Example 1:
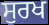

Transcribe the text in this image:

ਸੁਰਖ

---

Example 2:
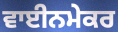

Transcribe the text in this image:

ਵਾਈਨਮੇਕਰ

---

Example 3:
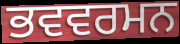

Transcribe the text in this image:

ਭਵਵਰਮਨ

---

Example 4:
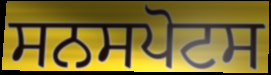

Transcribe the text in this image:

ਸਨਸਪੋਟਸ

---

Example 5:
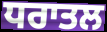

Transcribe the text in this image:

ਧਰਾਤਲ